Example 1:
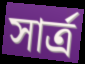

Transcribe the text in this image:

সার্ত্র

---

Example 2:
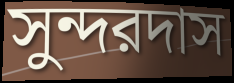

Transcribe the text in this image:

সুন্দরদাস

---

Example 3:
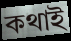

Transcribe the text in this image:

কথাই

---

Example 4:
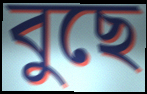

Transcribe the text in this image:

বুছে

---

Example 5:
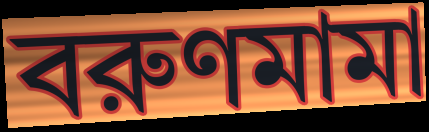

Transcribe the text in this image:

বরুণমামা